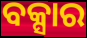
ବକ୍ସାର